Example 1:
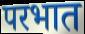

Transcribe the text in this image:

परभात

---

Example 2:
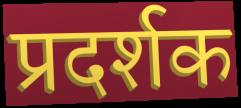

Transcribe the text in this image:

प्रदर्शक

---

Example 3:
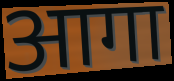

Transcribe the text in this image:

आगा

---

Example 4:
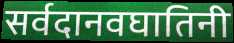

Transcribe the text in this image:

सर्वदानवघातिनी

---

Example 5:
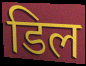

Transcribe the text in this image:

डिल